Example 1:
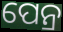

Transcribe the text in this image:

ପେନ୍ର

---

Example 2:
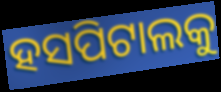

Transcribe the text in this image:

ହସପିଟାଲକୁ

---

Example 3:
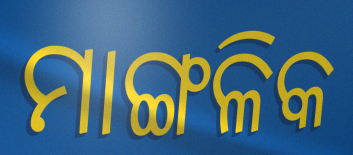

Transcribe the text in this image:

ମାଙ୍ଗଳିକ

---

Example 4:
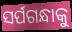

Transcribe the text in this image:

ସର୍ପଗନ୍ଧାକୁ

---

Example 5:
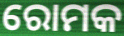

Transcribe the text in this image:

ରୋମକ